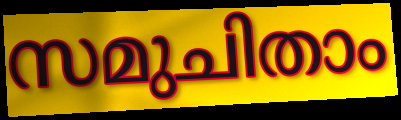
സമുചിതാം